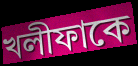
খলীফাকে